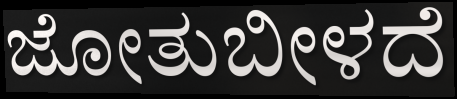
ಜೋತುಬೀಳದೆ